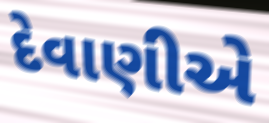
દેવાણીએ